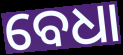
ବେଧା